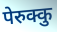
पेरुक्कु